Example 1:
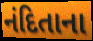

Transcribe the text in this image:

નંદિતાના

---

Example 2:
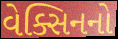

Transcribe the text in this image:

વેક્સિનનો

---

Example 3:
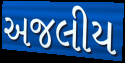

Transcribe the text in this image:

અજલીય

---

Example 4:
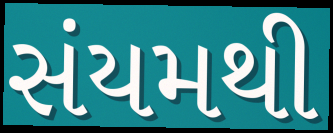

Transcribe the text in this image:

સંયમથી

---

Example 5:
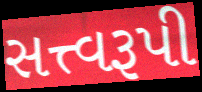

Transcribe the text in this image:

સત્ત્વરૂપી